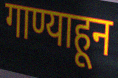
गाण्याहून